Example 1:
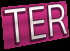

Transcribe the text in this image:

TER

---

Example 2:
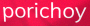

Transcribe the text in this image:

porichoy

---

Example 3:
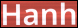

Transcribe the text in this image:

Hanh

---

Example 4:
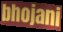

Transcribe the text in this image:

bhojani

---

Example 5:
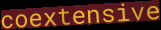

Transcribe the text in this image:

coextensive